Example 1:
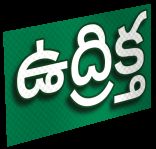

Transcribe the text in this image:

ఉద్రిక్త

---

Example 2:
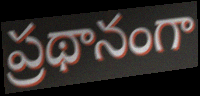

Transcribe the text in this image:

ప్రథానంగా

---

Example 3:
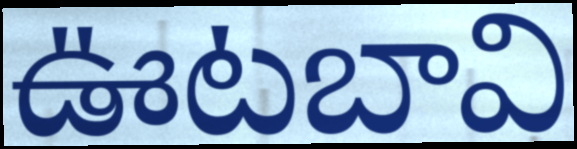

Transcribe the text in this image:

ఊటబావి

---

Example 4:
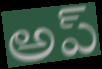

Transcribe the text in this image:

అప్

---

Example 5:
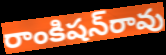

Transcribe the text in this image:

రాంకిషన్‌రావు